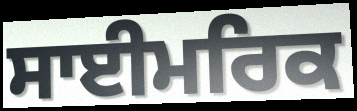
ਸਾਈਮਰਿਕ